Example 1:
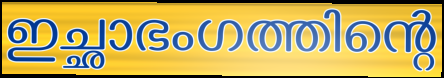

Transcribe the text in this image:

ഇച്ഛാഭംഗത്തിന്റെ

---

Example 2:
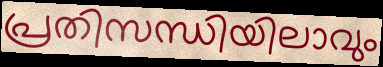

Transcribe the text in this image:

പ്രതിസന്ധിയിലാവും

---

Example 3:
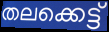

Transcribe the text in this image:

തലക്കെട്ട്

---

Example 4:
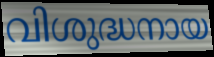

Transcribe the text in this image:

വിശുദ്ധനായ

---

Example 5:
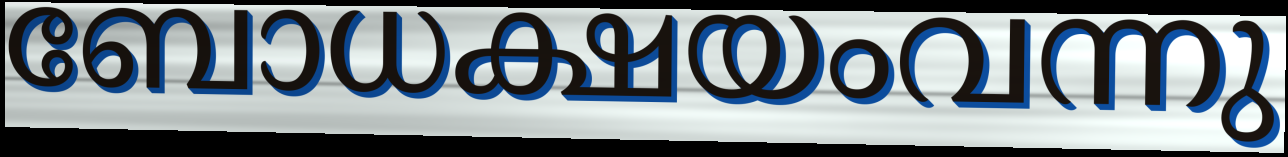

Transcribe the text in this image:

ബോധക്ഷയംവന്നു